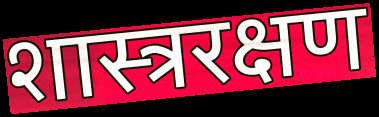
शास्त्ररक्षण